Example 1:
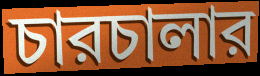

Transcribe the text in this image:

চারচালার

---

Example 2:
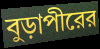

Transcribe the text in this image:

বুড়াপীরের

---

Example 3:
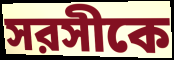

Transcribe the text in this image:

সরসীকে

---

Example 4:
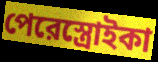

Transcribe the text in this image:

পেরেস্ত্রোইকা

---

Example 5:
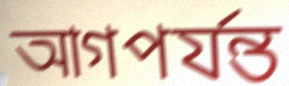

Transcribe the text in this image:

আগপর্যন্ত